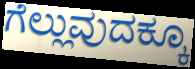
ಗೆಲ್ಲುವುದಕ್ಕೂ